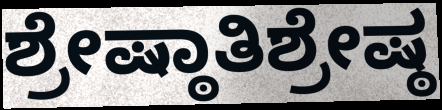
ಶ್ರೇಷ್ಠಾತಿಶ್ರೇಷ್ಠ